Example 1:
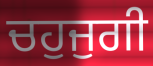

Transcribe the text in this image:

ਚਹੁਜੁਗੀ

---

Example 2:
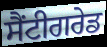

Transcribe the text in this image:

ਸੈਂਟੀਗਰੇਡ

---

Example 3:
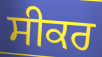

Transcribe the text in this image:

ਸੀਕਰ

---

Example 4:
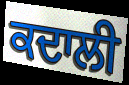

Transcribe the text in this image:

ਕਦਾਲੀ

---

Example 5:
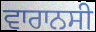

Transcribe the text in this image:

ਵਾਰਾਨਸੀ